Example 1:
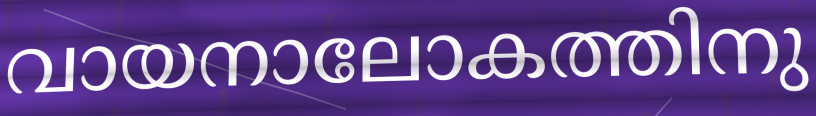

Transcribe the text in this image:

വായനാലോകത്തിനു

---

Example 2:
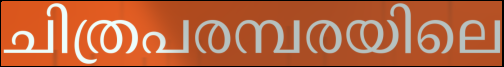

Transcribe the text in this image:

ചിത്രപരമ്പരയിലെ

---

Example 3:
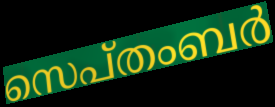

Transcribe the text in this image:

സെപ്തംബർ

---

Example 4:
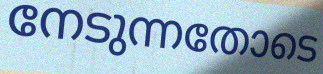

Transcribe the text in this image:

നേടുന്നതോടെ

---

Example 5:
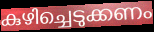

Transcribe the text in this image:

കുഴിച്ചെടുക്കണം